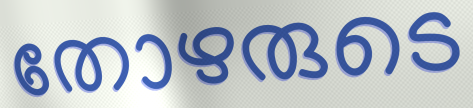
തോഴരുടെ